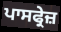
ਪਾਸਫ੍ਰੇਜ਼